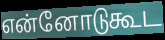
என்னோடுகூட